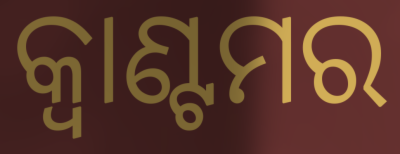
କ୍ୱାଣ୍ଟମର